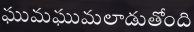
ఘుమఘుమలాడుతోంది